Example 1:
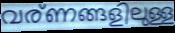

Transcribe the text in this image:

വര്ണങ്ങളിലുള്ള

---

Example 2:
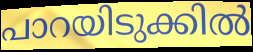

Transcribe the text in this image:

പാറയിടുക്കിൽ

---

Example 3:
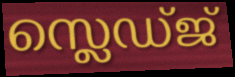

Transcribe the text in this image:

സ്ലെഡ്ജ്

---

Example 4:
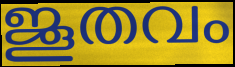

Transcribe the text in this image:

ജൂതവം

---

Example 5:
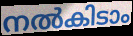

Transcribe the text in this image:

നൽകിടാം